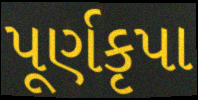
પૂર્ણકૃપા